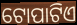
ଟୋପାଟିଏ